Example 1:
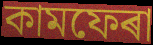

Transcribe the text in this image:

কামফেৰা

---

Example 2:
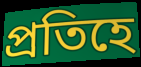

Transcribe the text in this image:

প্ৰতিহে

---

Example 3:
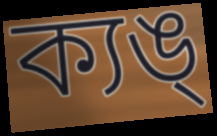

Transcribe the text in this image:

ক্যঙ্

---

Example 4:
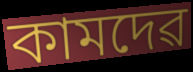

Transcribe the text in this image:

কামদেৱ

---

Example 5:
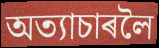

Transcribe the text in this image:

অত্যাচাৰলৈ